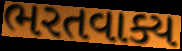
ભરતવાક્ય